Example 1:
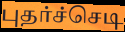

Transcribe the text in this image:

புதர்ச்செடி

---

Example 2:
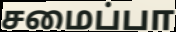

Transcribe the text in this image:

சமைப்பா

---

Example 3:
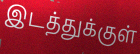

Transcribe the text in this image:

இடத்துக்குள்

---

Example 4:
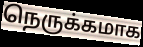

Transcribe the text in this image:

நெருக்கமாக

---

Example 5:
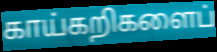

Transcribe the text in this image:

காய்கறிகளைப்